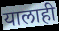
यालाही